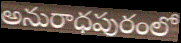
అనురాధపురంలో